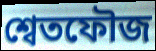
শ্বেতফৌজ